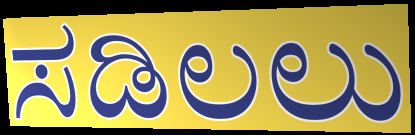
ಸಡಿಲಲು